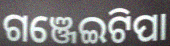
ଗଞ୍ଜେଇଟିପା